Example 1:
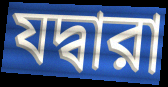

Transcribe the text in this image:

যদ্বারা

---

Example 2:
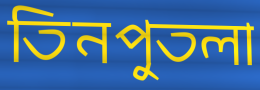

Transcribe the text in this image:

তিনপুতলা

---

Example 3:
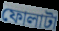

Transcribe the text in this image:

ফোলাটা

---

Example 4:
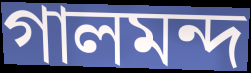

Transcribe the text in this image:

গালমন্দ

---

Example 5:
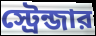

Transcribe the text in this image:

স্ট্রেন্জার